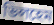
ভিলহেম